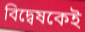
বিদ্বেষকেই